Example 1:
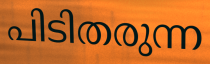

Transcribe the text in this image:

പിടിതരുന്ന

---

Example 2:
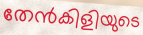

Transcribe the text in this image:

തേൻകിളിയുടെ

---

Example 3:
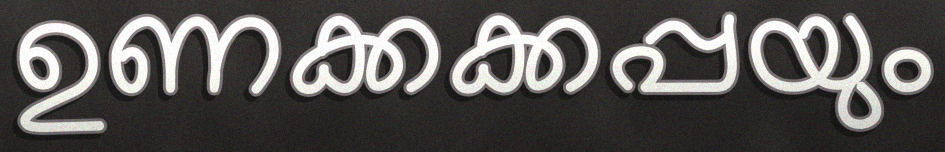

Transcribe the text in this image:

ഉണക്കക്കപ്പയും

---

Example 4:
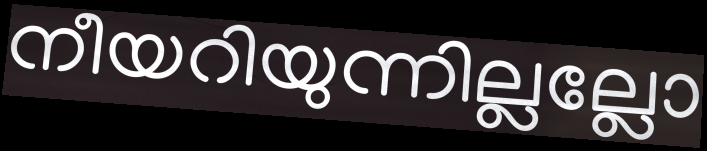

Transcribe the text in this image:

നീയറിയുന്നില്ലല്ലോ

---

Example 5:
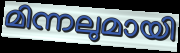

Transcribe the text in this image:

മിന്നലുമായി